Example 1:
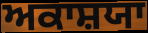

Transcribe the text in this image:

ਅਕਾਸ਼ਯਾ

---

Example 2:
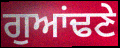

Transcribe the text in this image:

ਗੁਆਂਢਣੇ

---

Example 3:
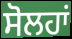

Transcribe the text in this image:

ਸੋਲਹਾਂ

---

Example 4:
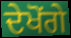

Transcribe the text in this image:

ਦੇਖੋਂਗੇ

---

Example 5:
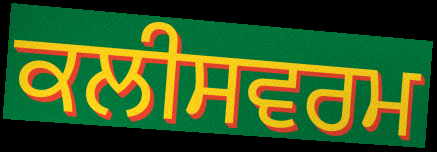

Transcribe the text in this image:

ਕਲੀਸਵਰਮ